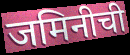
जमिनीची